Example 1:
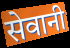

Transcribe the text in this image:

सेवानी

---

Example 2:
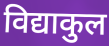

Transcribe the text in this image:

विद्याकुल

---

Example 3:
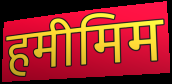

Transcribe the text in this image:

हमीमिम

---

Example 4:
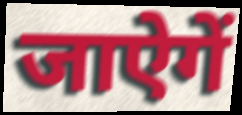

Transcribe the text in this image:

जाऐगें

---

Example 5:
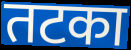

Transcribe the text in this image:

तटका